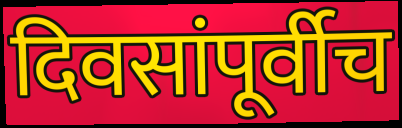
दिवसांपूर्वीच